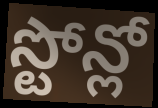
స్టోన్లో